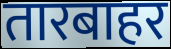
तारबाहर